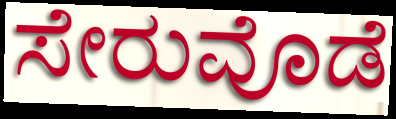
ಸೇರುವೊಡೆ